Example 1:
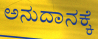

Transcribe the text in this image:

ಅನುದಾನಕ್ಕೆ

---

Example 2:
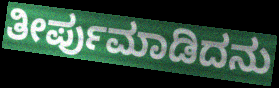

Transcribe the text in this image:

ತೀರ್ಪುಮಾಡಿದನು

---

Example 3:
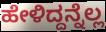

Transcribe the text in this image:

ಹೇಳಿದ್ದನ್ನೆಲ್ಲ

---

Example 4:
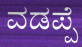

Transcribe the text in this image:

ವಡಪ್ಪೆ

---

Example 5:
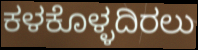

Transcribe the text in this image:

ಕಳಕೊಳ್ಳದಿರಲು